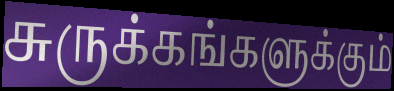
சுருக்கங்களுக்கும்